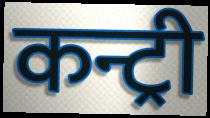
कन्ट्री